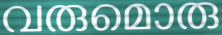
വരുമൊരു